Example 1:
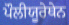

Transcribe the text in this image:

ਪੌਲੀਯੂਰੇਥੇਨ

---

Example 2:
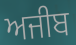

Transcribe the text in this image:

ਅਜੀਬ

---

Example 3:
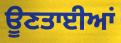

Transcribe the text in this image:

ਊਣਤਾਈਆਂ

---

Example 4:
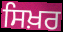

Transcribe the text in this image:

ਸਿਖ਼ਰ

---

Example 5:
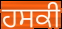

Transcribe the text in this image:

ਹਸਕੀ